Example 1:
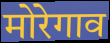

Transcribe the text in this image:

मोरेगाव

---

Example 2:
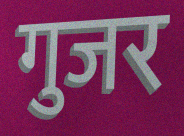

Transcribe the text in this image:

गुजर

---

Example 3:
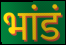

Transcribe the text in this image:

भांडं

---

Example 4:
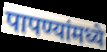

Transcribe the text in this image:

पापण्यांमध्ये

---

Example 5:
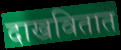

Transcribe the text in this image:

दाखवितात